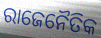
ରାଜେନୈତିକ